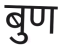
बुण